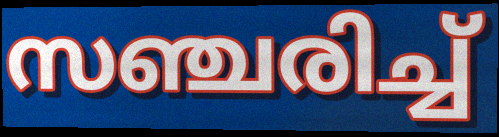
സഞ്ചരിച്ച്